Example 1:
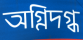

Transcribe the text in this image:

অগ্নিদগ্ধ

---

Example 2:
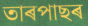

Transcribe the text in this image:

তাৰপাছৰ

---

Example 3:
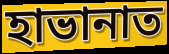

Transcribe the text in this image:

হাভানাত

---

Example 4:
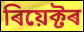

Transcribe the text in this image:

ৰিয়েক্টৰ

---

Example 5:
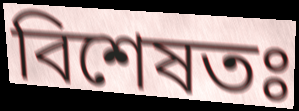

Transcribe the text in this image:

বিশেষতঃ